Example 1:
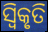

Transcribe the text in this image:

ସ୍ଵିକୃତି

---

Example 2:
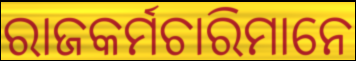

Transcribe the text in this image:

ରାଜକର୍ମଚାରିମାନେ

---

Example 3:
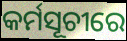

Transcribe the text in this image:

କର୍ମସୂଚୀରେ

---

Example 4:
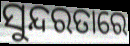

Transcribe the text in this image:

ସୁନ୍ଦରତାରେ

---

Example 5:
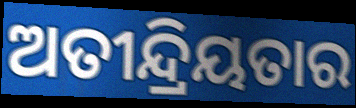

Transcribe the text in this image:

ଅତୀନ୍ଦ୍ରିୟତାର